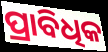
ପ୍ରାବିଧିକ